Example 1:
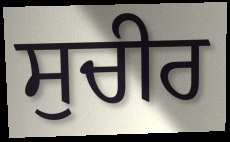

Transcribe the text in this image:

ਸੁਚੀਰ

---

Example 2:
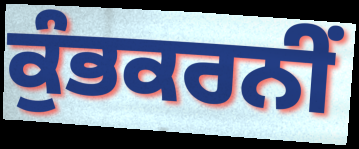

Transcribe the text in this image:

ਕੁੰਭਕਰਨੀਂ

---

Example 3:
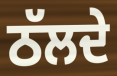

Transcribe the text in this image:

ਠੱਲਦੇ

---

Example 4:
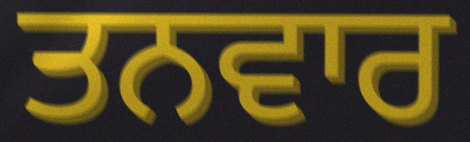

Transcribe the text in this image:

ਤਨਵਾਰ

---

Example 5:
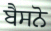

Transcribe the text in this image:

ਬੈਸਨੋ